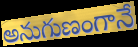
అనుగుణంగానే